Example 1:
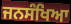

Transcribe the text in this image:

ਜਨਸੰਖਿਆ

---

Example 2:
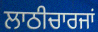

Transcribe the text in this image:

ਲਾਠੀਚਾਰਜਾਂ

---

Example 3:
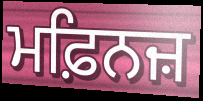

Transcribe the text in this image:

ਮਫ਼ਿਨਜ਼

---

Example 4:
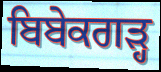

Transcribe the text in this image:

ਬਿਬੇਕਗੜ੍ਹ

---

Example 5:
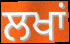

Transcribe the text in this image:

ਲਖਾਂ